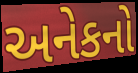
અનેકનો